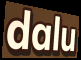
dalu